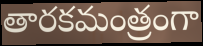
తారకమంత్రంగా